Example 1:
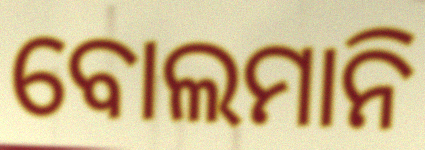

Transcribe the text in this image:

ବୋଲମାନି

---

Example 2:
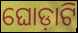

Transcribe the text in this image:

ଘୋଡ଼ାଟି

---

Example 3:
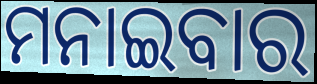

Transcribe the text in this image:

ମନାଇବାର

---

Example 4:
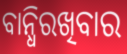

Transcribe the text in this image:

ବାନ୍ଧିରଖିବାର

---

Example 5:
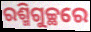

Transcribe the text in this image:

ରଶ୍ମିଗୁଚ୍ଛରେ